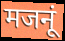
मजनूं